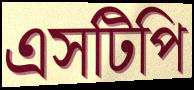
এসটিপি